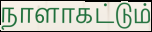
நாளாகட்டும்